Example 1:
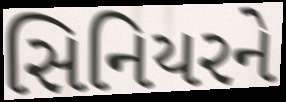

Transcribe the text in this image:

સિનિયરને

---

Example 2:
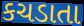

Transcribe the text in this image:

કચડાતા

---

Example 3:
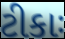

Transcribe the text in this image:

ટીકાઃ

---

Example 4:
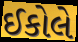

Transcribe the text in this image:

ઈકોલે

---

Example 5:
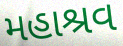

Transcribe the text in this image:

મહાશ્રવ